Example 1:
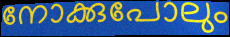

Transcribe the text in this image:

നോക്കുപോലും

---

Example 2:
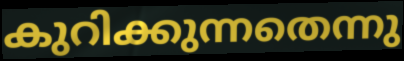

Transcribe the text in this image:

കുറിക്കുന്നതെന്നു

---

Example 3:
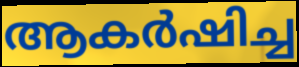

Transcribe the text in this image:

ആകർഷിച്ച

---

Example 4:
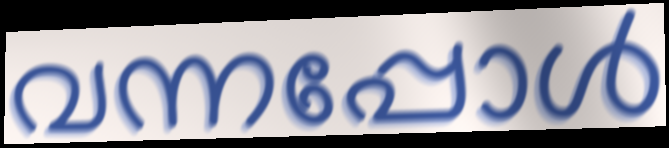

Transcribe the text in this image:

വന്നപ്പോൾ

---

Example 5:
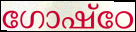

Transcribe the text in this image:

ഗോഷ്ഠേ